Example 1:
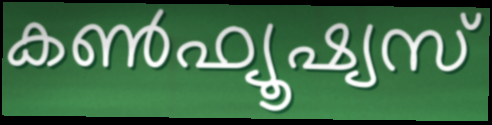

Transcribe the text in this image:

കൺഫ്യൂഷ്യസ്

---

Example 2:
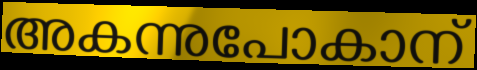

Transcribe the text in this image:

അകന്നുപോകാന്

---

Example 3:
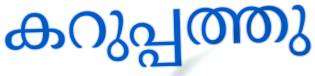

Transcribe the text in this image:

കറുപ്പത്തു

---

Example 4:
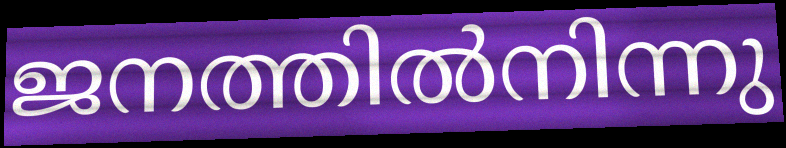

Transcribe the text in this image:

ജനത്തിൽനിന്നു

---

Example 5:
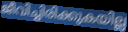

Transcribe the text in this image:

ജീവിച്ചിരിക്കുകയില്ല